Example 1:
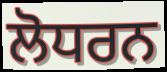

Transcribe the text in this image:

ਲੋਧਰਨ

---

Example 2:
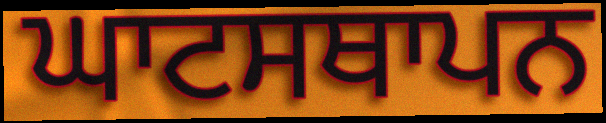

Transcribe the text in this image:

ਘਾਟਸਥਾਪਨ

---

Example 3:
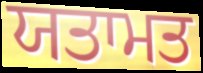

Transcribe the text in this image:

ਯਤਾਮਤ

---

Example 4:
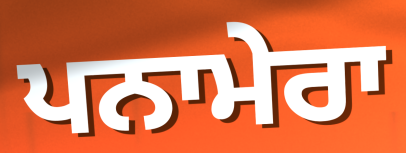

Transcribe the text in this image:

ਪਨਾਮੇਰਾ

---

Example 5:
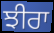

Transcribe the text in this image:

ਝੀਰਾ